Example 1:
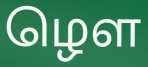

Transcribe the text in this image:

ழௌ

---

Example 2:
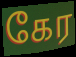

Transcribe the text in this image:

கேர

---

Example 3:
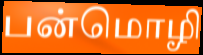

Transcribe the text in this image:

பன்மொழி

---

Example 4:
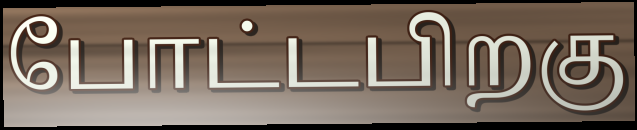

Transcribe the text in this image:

போட்டபிறகு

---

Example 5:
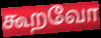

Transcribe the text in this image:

கூறவோ